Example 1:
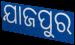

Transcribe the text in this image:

ଯାଜପୁର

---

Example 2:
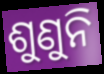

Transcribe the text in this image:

ଶୁଣୁନି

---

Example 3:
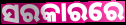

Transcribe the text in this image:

ସରକାରରେ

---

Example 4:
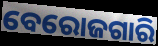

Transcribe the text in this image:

ବେରୋଜଗାରି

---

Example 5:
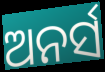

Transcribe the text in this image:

ଅନର୍ସ